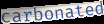
carbonated